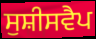
ਸੁਸ਼ੀਸਵੈਪ